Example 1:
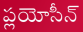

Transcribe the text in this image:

ప్లయోసీన్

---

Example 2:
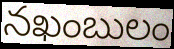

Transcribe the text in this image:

నఖంబులం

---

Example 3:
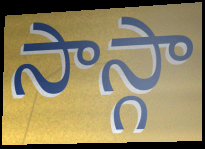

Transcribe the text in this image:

సాస్గా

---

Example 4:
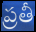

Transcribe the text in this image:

ప్రతీ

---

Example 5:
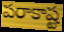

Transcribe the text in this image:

పరాకాష్ట